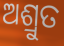
ଅଶ୍ରୁତ